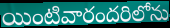
యింటివారందరిలోను